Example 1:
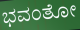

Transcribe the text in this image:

ಭವಂತೋ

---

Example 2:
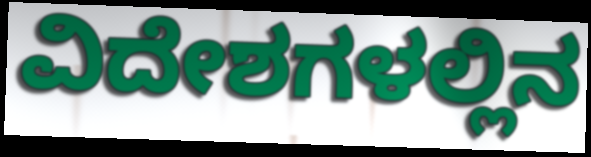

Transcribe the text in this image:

ವಿದೇಶಗಳಲ್ಲಿನ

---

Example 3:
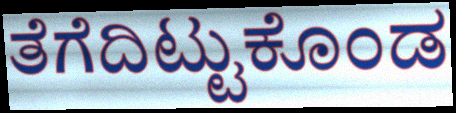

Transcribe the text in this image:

ತೆಗೆದಿಟ್ಟುಕೊಂಡ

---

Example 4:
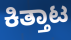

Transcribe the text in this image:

ಕಿತ್ತಾಟ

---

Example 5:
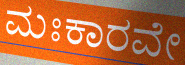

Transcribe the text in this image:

ಮಃಕಾರವೇ